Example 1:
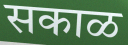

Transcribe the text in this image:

सकाळ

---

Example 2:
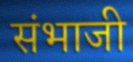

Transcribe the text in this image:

संभाजी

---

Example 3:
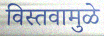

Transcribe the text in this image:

विस्तवामुळे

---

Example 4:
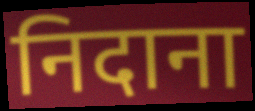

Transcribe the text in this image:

निदाना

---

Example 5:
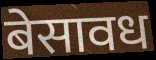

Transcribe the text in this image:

बेसावध